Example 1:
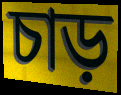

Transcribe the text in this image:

চাড়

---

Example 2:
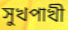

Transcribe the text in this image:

সুখপাখী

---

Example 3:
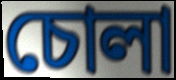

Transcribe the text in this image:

চোলা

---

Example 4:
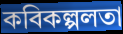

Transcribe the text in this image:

কবিকল্পলতা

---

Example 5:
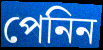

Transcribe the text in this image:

পেনিন